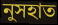
নুসহাত